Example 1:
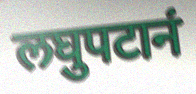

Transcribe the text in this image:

लघुपटानं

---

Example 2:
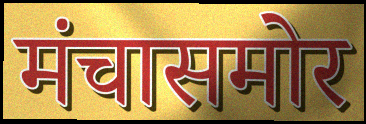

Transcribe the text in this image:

मंचासमोर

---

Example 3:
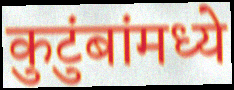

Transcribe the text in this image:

कुटुंबांमध्ये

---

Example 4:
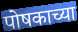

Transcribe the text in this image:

पोषकाच्या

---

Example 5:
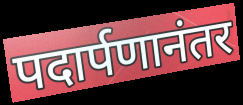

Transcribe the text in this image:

पदार्पणानंतर